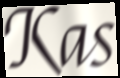
Kas